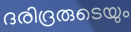
ദരിദ്രരുടെയും